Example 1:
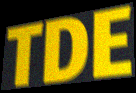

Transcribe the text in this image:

TDE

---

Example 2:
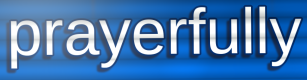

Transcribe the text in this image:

prayerfully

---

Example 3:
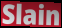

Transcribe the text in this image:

Slain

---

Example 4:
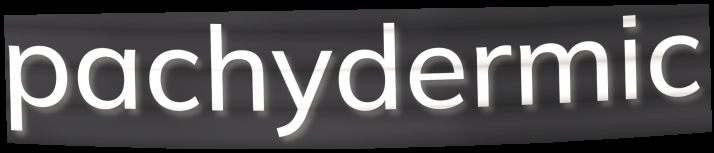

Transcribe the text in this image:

pachydermic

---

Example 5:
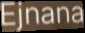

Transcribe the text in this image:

Ejnana